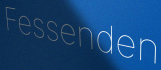
Fessenden